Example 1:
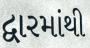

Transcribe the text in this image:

દ્વારમાંથી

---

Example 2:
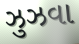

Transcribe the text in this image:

ઝુઝવા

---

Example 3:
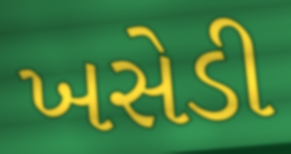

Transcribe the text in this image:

ખસેડી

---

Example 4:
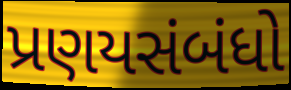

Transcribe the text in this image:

પ્રણયસંબંધો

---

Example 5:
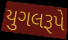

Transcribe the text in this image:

યુગલરૂપે